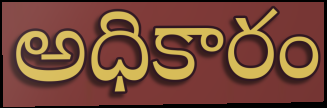
అధికారం